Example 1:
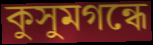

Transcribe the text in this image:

কুসুমগন্ধে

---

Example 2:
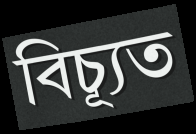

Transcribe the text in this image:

বিচ্যূত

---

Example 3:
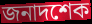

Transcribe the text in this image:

জনাদশেক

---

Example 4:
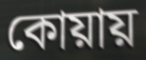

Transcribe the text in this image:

কোয়ায়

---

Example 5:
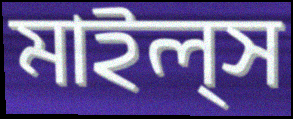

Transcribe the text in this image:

মাইল্‌স